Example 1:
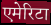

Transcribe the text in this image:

एमेरिटा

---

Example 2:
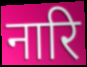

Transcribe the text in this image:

नारि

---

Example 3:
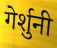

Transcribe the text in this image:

गेर्शुनी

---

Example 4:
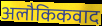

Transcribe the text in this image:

अलौकिकवाद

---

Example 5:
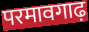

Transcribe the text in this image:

परमावगाढ़